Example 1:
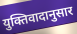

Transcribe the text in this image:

युक्तिवादानुसार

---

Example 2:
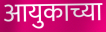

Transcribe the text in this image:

आयुकाच्या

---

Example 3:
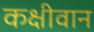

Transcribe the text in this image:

कक्षीवान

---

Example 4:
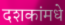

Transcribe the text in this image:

दशकांमधे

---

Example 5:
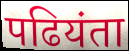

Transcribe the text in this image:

पढियंता